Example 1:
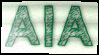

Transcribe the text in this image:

AIA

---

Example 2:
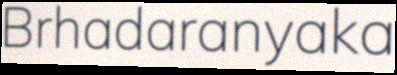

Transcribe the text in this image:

Brhadaranyaka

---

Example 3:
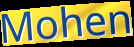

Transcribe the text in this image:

Mohen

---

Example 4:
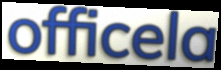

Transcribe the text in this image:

officela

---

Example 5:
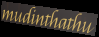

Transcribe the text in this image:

mudinthathu